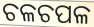
ଚଳଚପଳ